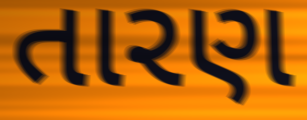
તારણ